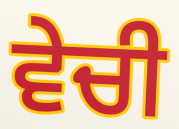
ਵੇਚੀ